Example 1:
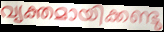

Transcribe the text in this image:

വ്യക്തമായിക്കണ്ടു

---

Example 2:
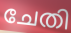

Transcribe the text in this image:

ചേതി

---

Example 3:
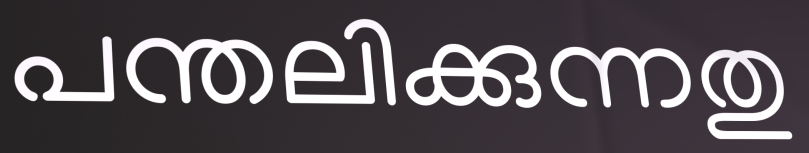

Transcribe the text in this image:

പന്തലിക്കുന്നതു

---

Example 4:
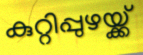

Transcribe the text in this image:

കുറ്റിപ്പുഴയ്ക്ക്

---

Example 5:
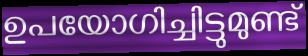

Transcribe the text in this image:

ഉപയോഗിച്ചിട്ടുമുണ്ട്